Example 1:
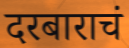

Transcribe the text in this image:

दरबाराचं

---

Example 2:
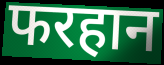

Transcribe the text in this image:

फरहान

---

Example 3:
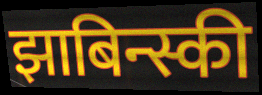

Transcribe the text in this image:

झाबिन्स्की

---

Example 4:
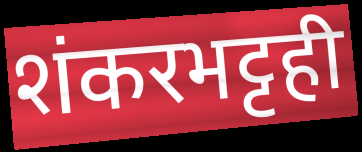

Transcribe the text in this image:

शंकरभट्टही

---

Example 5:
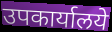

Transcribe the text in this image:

उपकार्यालये